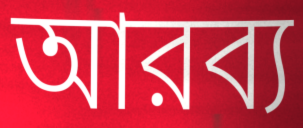
আরব্য